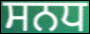
ਸਨਧ